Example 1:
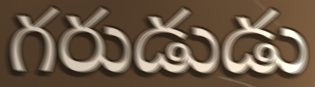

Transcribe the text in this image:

గరుడుడు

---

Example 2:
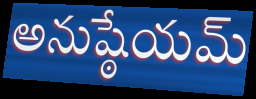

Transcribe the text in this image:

అనుష్ఠేయమ్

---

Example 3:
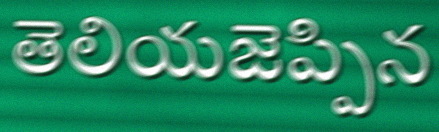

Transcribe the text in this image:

తెలియజెప్పిన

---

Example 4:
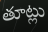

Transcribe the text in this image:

తూట్లు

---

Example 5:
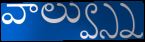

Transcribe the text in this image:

వాల్వ్స్ను